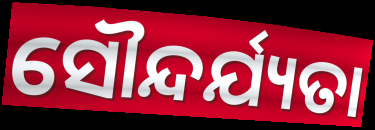
ସୌନ୍ଦର୍ଯ୍ୟତା